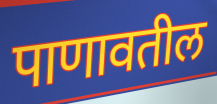
पाणावतील